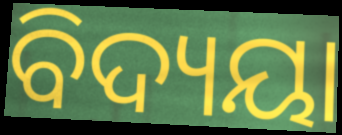
ବିଦ୍ୟୟା